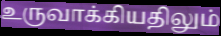
உருவாக்கியதிலும்